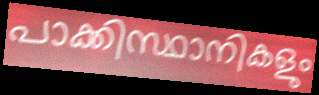
പാക്കിസ്ഥാനികളും